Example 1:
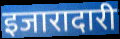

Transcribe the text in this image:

इजारादारी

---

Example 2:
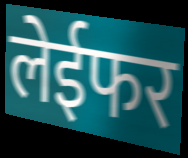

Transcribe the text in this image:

लेईफर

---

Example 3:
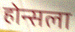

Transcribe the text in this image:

होन्सला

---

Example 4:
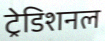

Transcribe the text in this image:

ट्रेडिशनल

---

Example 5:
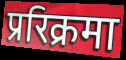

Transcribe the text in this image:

प्ररिक्रमा